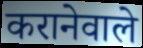
करानेवाले